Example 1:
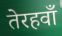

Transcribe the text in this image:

तेरहवाँ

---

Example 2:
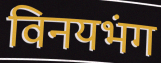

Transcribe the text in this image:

विनयभंग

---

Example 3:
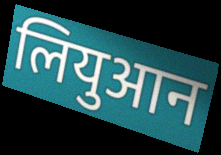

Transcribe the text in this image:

लियुआन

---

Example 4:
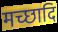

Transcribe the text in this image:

मच्छादि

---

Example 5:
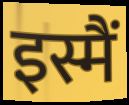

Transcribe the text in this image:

इस्मैं